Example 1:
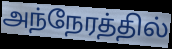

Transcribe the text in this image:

அந்நேரத்தில்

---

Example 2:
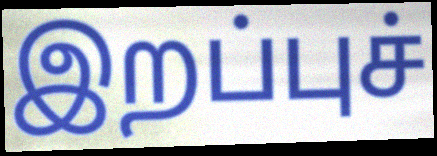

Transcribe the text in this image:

இறப்புச்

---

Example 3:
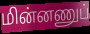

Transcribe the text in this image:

மின்னணுப்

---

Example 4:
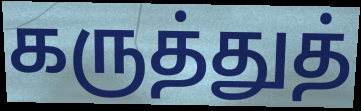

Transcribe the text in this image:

கருத்துத்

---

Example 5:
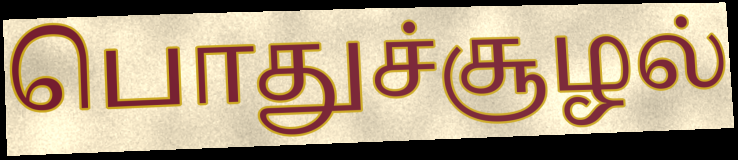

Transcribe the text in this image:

பொதுச்சூழல்